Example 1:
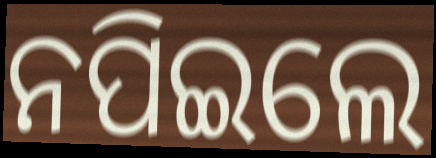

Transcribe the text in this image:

ନପିଇଲେ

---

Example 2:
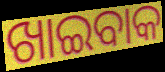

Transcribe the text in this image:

ଖାଇବାକ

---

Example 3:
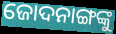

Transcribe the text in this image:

ଜୋଦନାଙ୍ଗଙ୍କୁ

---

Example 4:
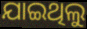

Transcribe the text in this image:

ଯାଇଥିଲୁ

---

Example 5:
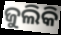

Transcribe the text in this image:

ଜୁଲିକି